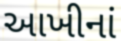
આખીનાં